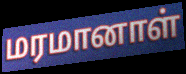
மரமானாள்